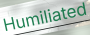
Humiliated